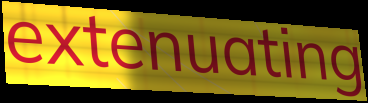
extenuating